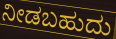
ನೀಡಬಹುದು